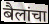
बैलांचा